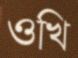
ওখি